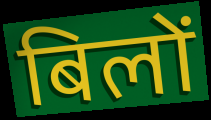
बिलों